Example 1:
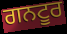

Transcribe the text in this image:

ਗਨਟੂਰ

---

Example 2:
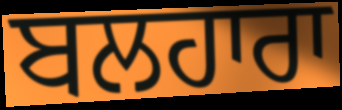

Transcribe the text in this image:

ਬਲਹਾਰਾ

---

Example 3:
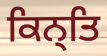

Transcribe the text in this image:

ਕਿਨ੍ਤਿ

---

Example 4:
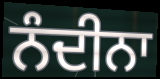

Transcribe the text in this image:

ਨੰਦੀਨਾ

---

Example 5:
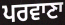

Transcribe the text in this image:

ਪਰਵਾਣਾ